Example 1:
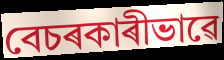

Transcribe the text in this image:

বেচৰকাৰীভাৱে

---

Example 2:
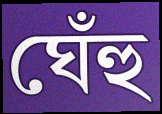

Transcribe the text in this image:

ঘেঁহু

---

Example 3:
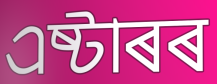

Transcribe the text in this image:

এষ্টাৰৰ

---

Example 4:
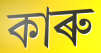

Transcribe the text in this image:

কাৰু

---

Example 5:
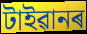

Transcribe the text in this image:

টাইৱানৰ